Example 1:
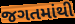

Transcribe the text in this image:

જગતમાંથી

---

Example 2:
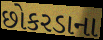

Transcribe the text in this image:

છોકરડાના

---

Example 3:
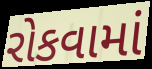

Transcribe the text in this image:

રોકવામાં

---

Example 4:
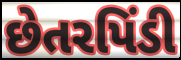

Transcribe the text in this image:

છેતરપિંડી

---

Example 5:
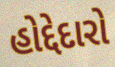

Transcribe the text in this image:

હોદ્દેદારો